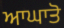
ਆਘਾਤੋ